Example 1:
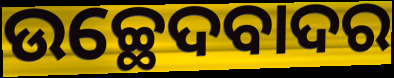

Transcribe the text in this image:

ଉଚ୍ଛେଦବାଦର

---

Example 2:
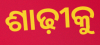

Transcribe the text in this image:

ଶାଢ଼ୀକୁ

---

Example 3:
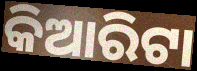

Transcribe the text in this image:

କିଆରିଟା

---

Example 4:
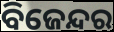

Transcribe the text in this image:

ବିଜେନ୍ଦର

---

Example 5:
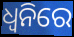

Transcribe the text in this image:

ଧ୍ଵନିରେ